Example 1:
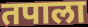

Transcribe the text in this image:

तपाला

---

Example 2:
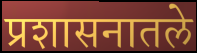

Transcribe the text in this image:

प्रशासनातले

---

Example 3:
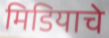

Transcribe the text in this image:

मिडियाचे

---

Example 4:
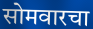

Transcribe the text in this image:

सोमवारचा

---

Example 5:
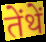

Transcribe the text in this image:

तेंथें